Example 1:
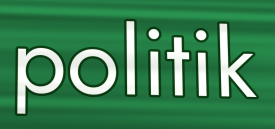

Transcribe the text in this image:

politik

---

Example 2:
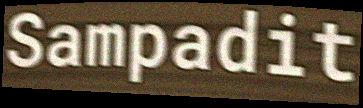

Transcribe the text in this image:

Sampadit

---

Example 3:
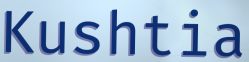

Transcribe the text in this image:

Kushtia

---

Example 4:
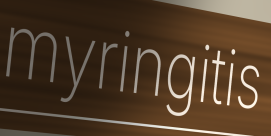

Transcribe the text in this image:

myringitis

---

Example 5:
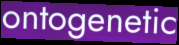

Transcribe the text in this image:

ontogenetic